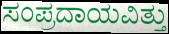
ಸಂಪ್ರದಾಯವಿತ್ತು